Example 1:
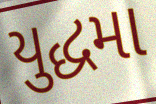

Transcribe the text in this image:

યુદ્ધમા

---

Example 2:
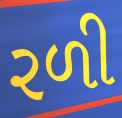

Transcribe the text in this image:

રળી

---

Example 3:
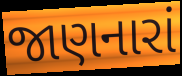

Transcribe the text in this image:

જાણનારાં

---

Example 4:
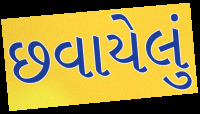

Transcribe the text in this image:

છવાયેલું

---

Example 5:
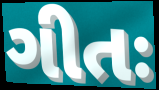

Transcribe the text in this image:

ગીતઃ